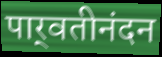
पार्वतीनंदन